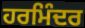
ਹਰਮਿੰਦਰ